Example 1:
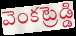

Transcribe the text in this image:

వెంకట్రెడ్డి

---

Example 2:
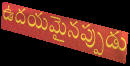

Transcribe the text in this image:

ఉదయమైనప్పుడు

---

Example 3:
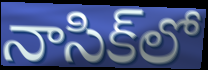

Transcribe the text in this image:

నాసిక్‌లో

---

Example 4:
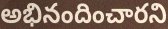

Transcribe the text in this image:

అభినందించారని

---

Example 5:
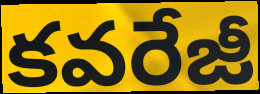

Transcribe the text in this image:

కవరేజీ